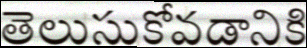
తెలుసుకోవడానికి